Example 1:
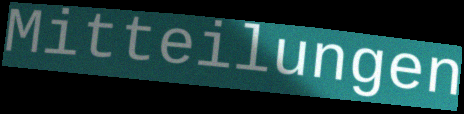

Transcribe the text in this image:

Mitteilungen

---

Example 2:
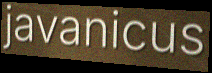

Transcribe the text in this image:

javanicus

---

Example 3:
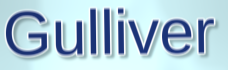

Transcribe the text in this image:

Gulliver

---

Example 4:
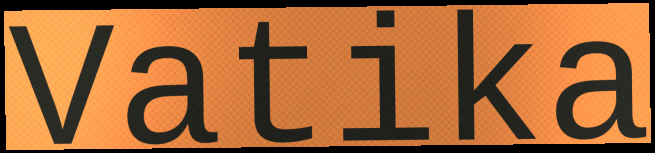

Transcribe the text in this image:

Vatika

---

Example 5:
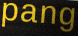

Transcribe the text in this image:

pang